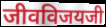
जीवविजयजी